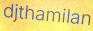
djthamilan